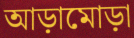
আড়ামোড়া